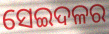
ସେଇଦଳର